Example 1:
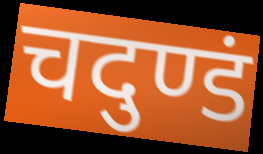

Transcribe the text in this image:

चदुण्डं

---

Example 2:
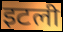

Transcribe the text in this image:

इटली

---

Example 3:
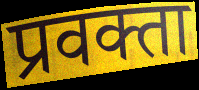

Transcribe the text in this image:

प्रवक्ता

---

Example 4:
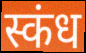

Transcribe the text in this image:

स्कंध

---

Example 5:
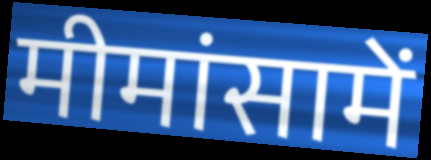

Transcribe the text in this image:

मीमांसामें